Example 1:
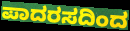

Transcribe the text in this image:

ಪಾದರಸದಿಂದ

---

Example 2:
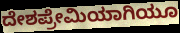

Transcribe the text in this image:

ದೇಶಪ್ರೇಮಿಯಾಗಿಯೂ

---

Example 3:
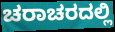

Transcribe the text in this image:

ಚರಾಚರದಲ್ಲಿ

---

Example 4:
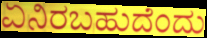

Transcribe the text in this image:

ಏನಿರಬಹುದೆಂದು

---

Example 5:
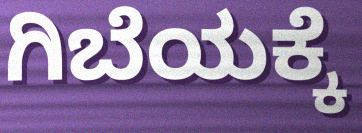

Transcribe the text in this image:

ಗಿಬೆಯಕ್ಕೆ